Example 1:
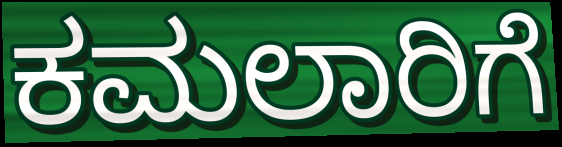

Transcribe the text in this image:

ಕಮಲಾರಿಗೆ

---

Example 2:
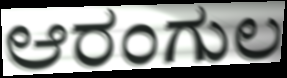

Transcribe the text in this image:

ಆರಂಗುಲ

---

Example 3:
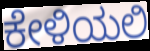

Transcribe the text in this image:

ಕೇಳಿಯಲಿ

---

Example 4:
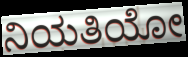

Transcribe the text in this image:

ನಿಯತಿಯೋ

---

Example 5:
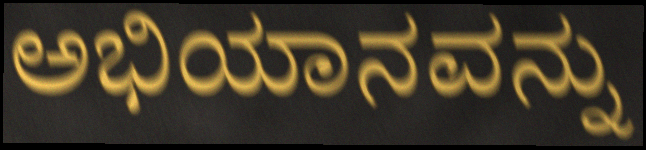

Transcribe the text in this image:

ಅಭಿಯಾನವನ್ನು